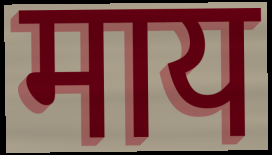
माय